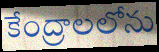
కేంద్రాలలోను